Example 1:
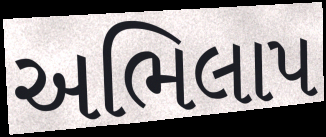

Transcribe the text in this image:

અભિલાપ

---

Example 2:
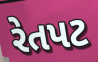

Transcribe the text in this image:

રેતપટ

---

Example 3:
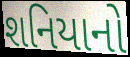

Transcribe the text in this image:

શનિયાનો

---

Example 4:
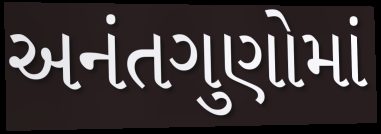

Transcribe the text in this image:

અનંતગુણોમાં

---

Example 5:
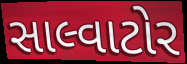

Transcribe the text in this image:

સાલ્વાટોર